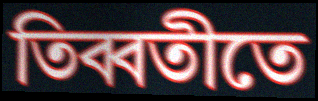
তিব্বতীতে